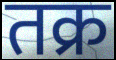
तक्र